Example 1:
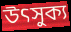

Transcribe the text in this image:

উৎসুক্য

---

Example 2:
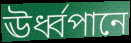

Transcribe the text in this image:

ঊর্ধ্বপানে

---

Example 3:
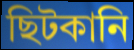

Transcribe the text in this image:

ছিটকানি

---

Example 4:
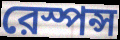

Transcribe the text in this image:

রেস্পন্স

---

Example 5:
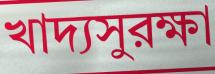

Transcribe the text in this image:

খাদ্যসুরক্ষা